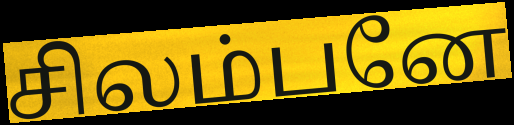
சிலம்பனே